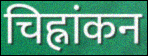
चिह्नांकन